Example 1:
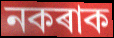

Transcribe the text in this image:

নকৰাক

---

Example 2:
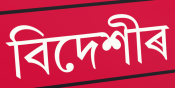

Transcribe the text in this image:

বিদেশীৰ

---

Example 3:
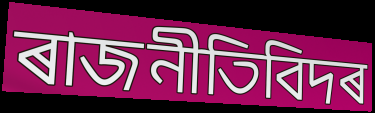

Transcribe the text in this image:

ৰাজনীতিবিদৰ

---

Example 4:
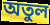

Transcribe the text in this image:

অতুল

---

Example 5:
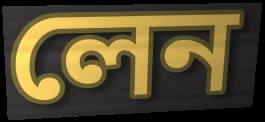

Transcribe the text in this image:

লেন